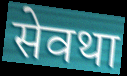
सेवथा